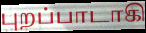
புறப்பாடாகி